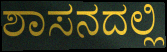
ಶಾಸನದಲ್ಲಿ